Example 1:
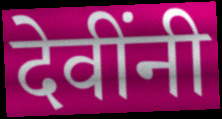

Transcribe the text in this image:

देवींनी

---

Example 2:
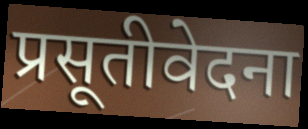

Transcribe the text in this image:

प्रसूतीवेदना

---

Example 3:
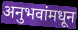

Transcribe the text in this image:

अनुभवांमधून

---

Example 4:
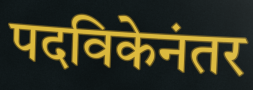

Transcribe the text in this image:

पदविकेनंतर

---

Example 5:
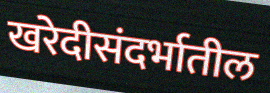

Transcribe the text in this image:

खरेदीसंदर्भातील